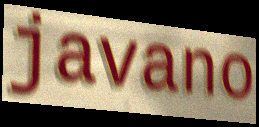
javano